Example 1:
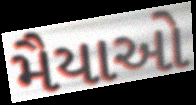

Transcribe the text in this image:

મૈયાઓ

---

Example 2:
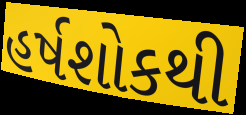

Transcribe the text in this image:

હર્ષશોકથી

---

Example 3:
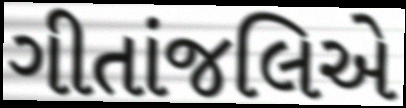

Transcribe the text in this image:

ગીતાંજલિએ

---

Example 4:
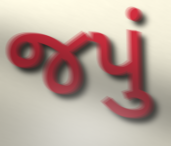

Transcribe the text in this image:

જપું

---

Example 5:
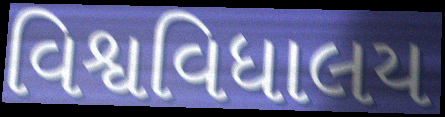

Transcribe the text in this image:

વિશ્વવિધાલય